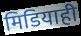
मिडियाही